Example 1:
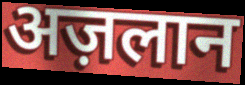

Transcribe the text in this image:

अज़लान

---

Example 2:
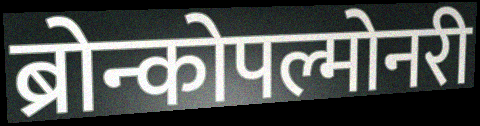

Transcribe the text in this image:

ब्रोन्कोपल्मोनरी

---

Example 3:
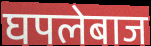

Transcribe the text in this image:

घपलेबाज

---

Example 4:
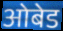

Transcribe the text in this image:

ओबेड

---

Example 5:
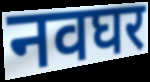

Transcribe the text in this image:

नवघर